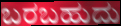
ಬರಬಹುದು